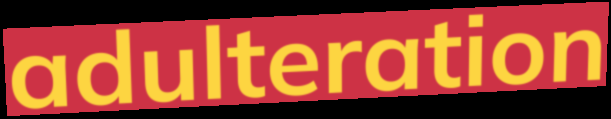
adulteration